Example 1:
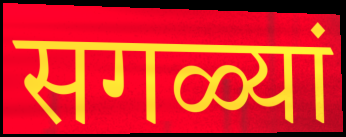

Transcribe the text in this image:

सगळ्यां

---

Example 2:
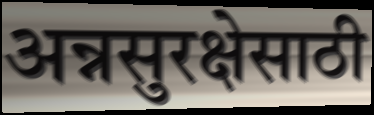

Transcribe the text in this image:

अन्नसुरक्षेसाठी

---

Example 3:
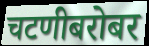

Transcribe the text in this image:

चटणीबरोबर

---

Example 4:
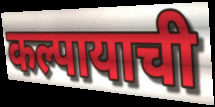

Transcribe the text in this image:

कल्पायाची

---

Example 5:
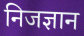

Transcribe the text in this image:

निजज्ञान